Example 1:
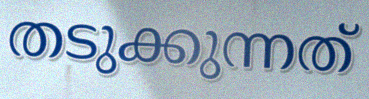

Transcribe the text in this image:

തടുക്കുന്നത്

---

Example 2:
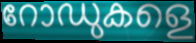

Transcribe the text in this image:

റോഡുകളെ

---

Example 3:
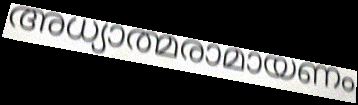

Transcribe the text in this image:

അധ്യാത്മരാമായണം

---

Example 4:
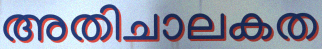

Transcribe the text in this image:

അതിചാലകത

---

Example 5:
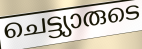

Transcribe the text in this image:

ചെട്ട്യാരുടെ